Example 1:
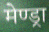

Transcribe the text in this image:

मेण्ड्रा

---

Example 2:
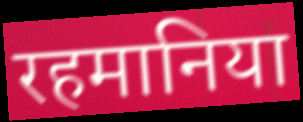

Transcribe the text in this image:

रहमानिया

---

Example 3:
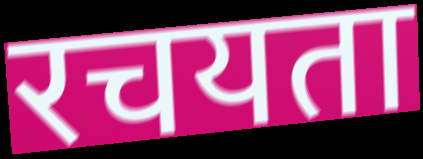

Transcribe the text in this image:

रचयता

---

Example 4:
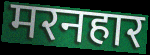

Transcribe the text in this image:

मरनहार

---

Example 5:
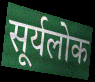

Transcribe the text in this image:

सूर्यलोक